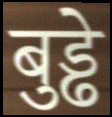
बुड्ढे